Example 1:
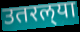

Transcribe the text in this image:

उतरल्या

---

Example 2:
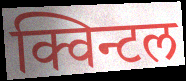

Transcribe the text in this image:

क्विन्टल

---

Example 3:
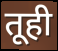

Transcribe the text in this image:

तूही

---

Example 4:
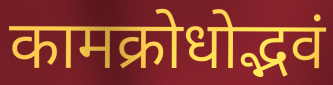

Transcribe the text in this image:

कामक्रोधोद्भवं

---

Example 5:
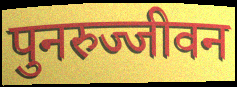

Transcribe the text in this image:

पुनरुज्जीवन